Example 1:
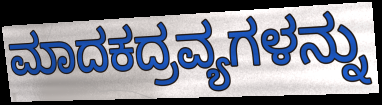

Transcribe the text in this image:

ಮಾದಕದ್ರವ್ಯಗಳನ್ನು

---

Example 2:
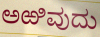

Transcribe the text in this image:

ಅಱಿವುದು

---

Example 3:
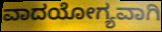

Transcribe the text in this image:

ವಾದಯೋಗ್ಯವಾಗಿ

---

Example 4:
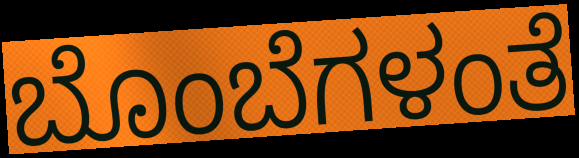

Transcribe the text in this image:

ಬೊಂಬೆಗಳಂತೆ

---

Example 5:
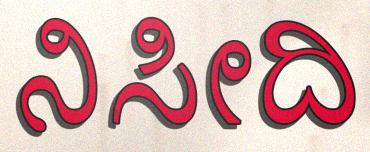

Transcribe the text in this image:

ನಿಸೀದಿ